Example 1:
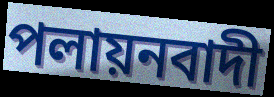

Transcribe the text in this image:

পলায়নবাদী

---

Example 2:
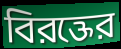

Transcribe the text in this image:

বিরক্তের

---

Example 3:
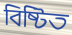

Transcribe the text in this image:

বিষ্টিত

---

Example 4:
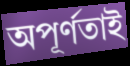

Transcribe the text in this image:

অপূর্ণতাই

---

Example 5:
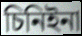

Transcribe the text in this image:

চিনিইনা